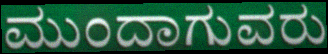
ಮುಂದಾಗುವರು